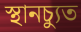
স্থানচ্যুত